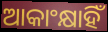
ଆକାଂକ୍ଷାହିଁ